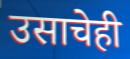
उसाचेही